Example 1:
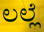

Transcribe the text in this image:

ಲಲ್ಲೆ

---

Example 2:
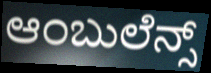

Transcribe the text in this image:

ಆಂಬುಲೆನ್ಸ್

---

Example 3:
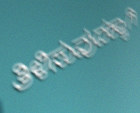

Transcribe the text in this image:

ತಿಳಿಸುವುದಕ್ಕಾಗಿ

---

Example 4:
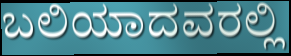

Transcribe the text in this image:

ಬಲಿಯಾದವರಲ್ಲಿ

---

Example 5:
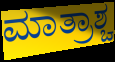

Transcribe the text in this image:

ಮಾತ್ರಾಶ್ಚ